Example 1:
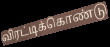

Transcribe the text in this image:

விரட்டிக்கொண்டு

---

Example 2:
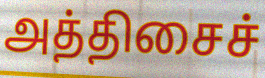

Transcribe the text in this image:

அத்திசைச்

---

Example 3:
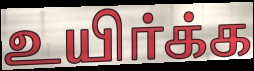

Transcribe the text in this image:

உயிர்க்க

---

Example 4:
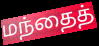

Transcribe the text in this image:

மந்தைத்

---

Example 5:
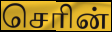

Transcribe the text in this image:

செரின்